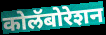
कोलॅबोरेशन